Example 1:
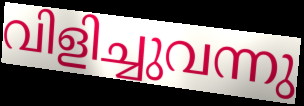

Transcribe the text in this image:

വിളിച്ചുവന്നു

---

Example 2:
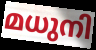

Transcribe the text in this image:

മധുനി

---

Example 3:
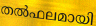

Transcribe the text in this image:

തൽഫലമായി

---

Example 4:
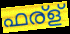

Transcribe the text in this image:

ഫര്ള്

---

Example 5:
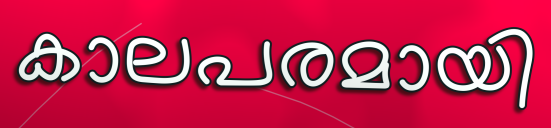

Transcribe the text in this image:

കാലപരമായി